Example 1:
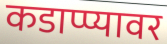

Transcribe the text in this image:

कडाप्प्यावर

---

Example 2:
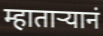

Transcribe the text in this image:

म्हाताऱ्यानं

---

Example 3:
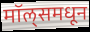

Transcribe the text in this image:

मॉल्समधून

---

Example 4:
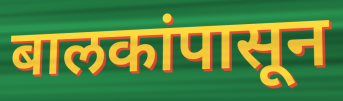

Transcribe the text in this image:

बालकांपासून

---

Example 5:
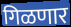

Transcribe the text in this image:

गिळणार